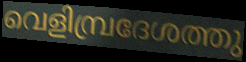
വെളിമ്പ്രദേശത്തു